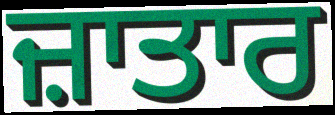
ਜ਼ਾਤਾਰ